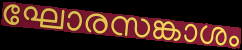
ഘോരസങ്കാശം